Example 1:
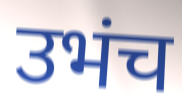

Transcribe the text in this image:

उभंच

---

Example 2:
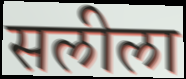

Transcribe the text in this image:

सलीला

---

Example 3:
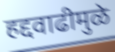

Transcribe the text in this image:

हद्दवाढीमुळे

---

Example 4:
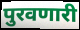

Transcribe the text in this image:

पुरवणारी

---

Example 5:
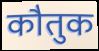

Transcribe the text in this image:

कौतुक